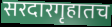
सरदारगृहातच